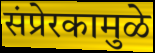
संप्रेरकामुळे